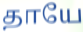
தாயே